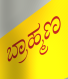
ಬ್ರಾಹ್ಮಣ